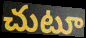
చుటూ